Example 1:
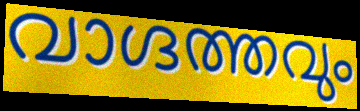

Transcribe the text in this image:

വാഗ്ദത്തവും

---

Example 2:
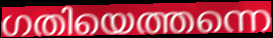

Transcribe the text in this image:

ഗതിയെത്തന്നെ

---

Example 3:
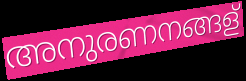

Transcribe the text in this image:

അനുരണനങ്ങള്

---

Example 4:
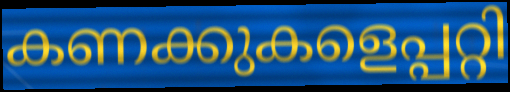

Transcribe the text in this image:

കണക്കുകളെപ്പറ്റി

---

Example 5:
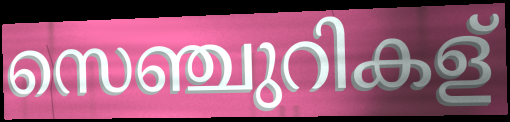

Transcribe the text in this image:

സെഞ്ചുറികള്